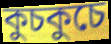
কুচকুচে